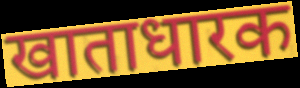
खाताधारक